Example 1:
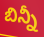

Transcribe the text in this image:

బిన్నీ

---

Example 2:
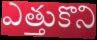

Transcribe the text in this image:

ఎత్తుకొని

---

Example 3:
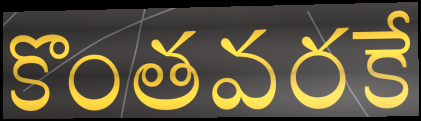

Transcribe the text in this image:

కొంతవరకే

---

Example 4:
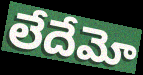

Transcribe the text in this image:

లేదేమో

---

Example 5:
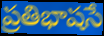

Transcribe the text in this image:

ప్రతిభాషసే